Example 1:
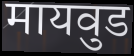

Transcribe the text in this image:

मायवुड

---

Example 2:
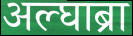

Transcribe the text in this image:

अल्घाब्रा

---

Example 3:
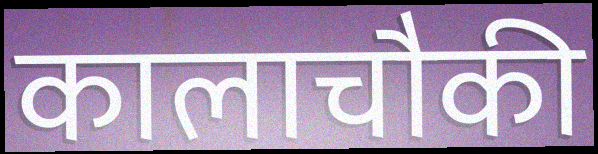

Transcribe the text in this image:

कालाचौकी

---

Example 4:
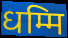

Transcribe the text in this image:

धम्मि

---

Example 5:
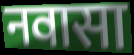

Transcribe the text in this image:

नवासा